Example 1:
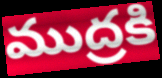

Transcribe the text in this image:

ముద్రకి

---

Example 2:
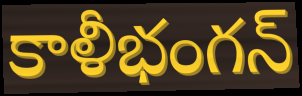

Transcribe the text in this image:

కాళీభంగన్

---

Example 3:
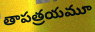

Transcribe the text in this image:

తాపత్రయమూ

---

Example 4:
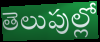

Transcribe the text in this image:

తెలుపుల్లో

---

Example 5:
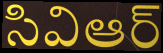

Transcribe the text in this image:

సివిఆర్